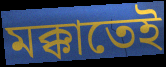
মক্কাতেই